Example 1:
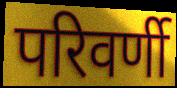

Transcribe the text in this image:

परिवर्णी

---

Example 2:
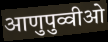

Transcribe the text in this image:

आणुपुव्वीओ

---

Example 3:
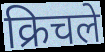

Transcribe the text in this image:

क्रिचले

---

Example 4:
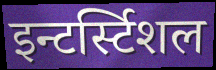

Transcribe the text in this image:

इन्टर्स्टिशल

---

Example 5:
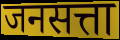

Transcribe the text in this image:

जनसत्ता